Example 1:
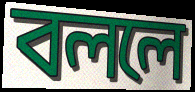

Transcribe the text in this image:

বললে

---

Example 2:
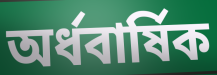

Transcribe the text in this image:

অর্ধবার্ষিক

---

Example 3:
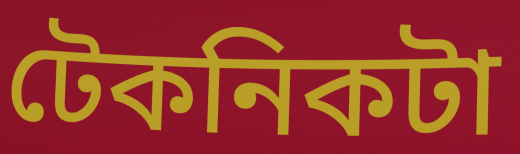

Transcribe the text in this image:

টেকনিকটা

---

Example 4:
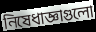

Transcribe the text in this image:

নিষেধাজ্ঞাগুলো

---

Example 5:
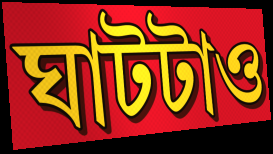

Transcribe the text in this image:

ঘাটটাও